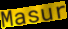
Masur